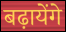
बढ़ायेंगे